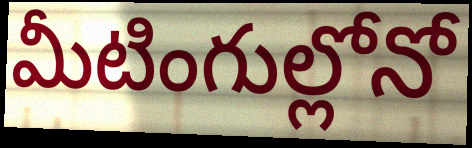
మీటింగుల్లోనో